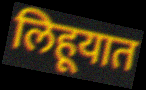
लिहूयात